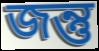
জন্তু